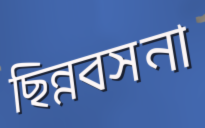
ছিন্নবসনা